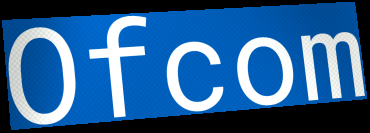
Ofcom